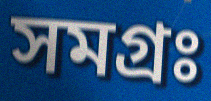
সমগ্রঃ